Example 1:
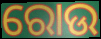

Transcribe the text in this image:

ରୋଉ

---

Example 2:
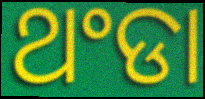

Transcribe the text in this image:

ଥଂଡା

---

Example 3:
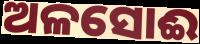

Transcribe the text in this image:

ଅଳସୋଈ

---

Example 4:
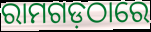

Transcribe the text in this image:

ରାମଗଡ଼ଠାରେ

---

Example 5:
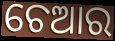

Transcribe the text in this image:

ଚେଆର